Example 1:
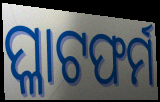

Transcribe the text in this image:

ପ୍ଳାଟଫର୍ମ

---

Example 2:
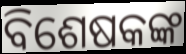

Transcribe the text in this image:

ବିଶେଷକଙ୍କ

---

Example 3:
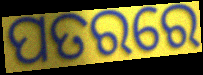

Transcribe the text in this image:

ପତରରେ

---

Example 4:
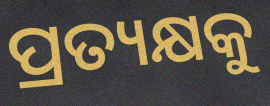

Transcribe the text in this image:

ପ୍ରତ୍ୟକ୍ଷକୁ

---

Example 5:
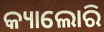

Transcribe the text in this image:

କ୍ୟାଲୋରି